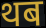
थब